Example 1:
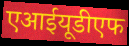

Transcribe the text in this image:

एआईयूडीएफ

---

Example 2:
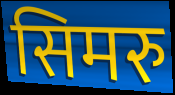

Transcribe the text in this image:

सिमरु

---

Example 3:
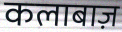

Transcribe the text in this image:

कलाबाज़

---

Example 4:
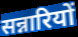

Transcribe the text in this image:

सन्नारियों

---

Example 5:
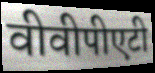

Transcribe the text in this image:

वीवीपीएटी